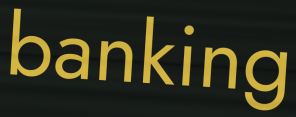
banking